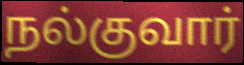
நல்குவார்